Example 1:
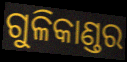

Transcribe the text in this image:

ଗୁଳିକାଣ୍ଡର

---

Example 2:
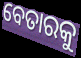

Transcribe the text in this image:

ବେତାରକୁ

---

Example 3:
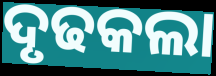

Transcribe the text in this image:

ଦୃଢକଲା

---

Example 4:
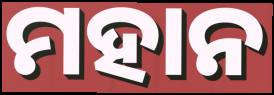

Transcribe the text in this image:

ମହାନ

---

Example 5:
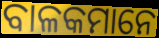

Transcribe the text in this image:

ବାଳକମାନେ